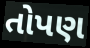
તોપણ